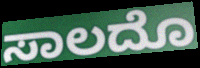
ಸಾಲದೊ